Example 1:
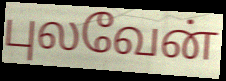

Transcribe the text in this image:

புலவேன்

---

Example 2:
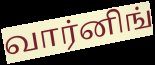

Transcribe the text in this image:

வார்னிங்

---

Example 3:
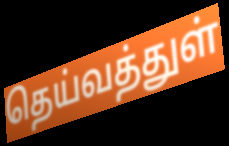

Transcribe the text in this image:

தெய்வத்துள்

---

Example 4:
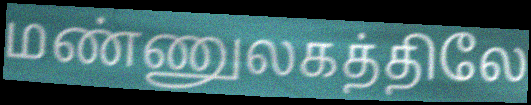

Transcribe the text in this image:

மண்ணுலகத்திலே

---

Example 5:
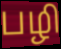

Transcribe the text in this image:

பழி